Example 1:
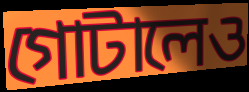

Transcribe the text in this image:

গোটালেও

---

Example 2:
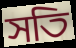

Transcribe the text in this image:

সতি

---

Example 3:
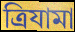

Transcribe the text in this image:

ত্রিযামা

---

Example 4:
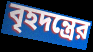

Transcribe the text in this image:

বৃহদন্ত্রের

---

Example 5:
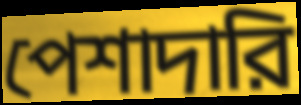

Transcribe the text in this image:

পেশাদারি